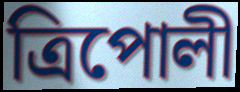
ত্রিপোলী